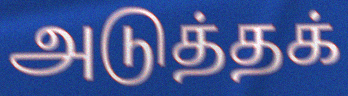
அடுத்தக்